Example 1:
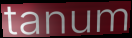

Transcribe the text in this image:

tanum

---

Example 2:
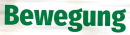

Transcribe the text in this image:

Bewegung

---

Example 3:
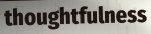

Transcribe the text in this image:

thoughtfulness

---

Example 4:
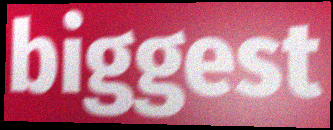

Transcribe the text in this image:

biggest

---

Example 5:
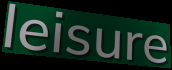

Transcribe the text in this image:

leisure